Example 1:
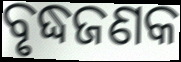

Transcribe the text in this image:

ବୃଦ୍ଧଜଣକ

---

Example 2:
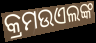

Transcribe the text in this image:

କ୍ରମଉଏଲଙ୍କ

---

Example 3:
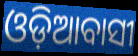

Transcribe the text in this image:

ଓଡ଼ିଆବାସୀ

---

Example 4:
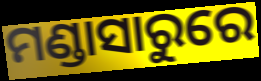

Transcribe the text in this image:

ମଣ୍ଡାସାରୁରେ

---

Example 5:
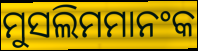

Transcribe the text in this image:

ମୁସଲିମମାନଂକ